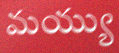
మయ్యు